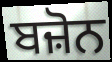
ਬਜ਼ੋਨ